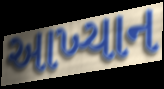
આખ્યાન